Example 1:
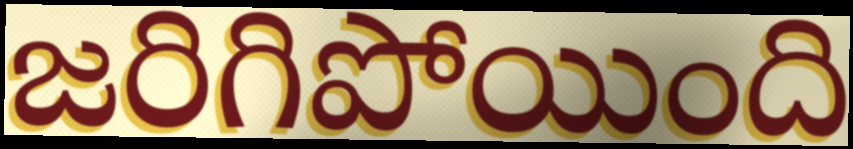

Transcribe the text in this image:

జరిగిపోయింది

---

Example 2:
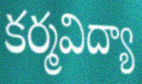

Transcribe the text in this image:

కర్మవిద్యా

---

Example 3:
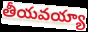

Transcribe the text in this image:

తీయవయ్యా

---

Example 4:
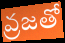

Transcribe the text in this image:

వ్రజతో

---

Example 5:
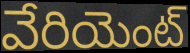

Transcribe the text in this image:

వేరియెంట్